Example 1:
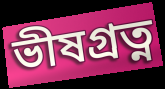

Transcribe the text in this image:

ভীষগ্ৰত্ন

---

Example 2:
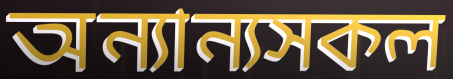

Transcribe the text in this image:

অন্যান্যসকল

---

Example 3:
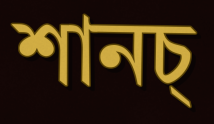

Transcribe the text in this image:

শানচ্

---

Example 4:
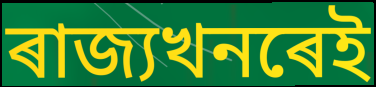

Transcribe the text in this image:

ৰাজ্যখনৰেই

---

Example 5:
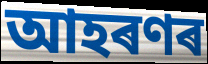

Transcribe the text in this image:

আহৰণৰ